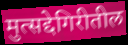
मुत्सद्देगिरीतील